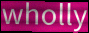
wholly